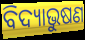
ବିଦ୍ୟାଭୁଷଣ